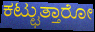
ಕಟ್ಟುತ್ತಾರೋ